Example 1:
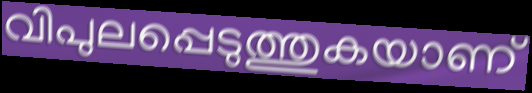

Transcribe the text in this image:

വിപുലപ്പെടുത്തുകയാണ്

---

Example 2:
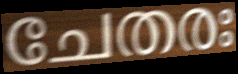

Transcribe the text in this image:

ചേതരഃ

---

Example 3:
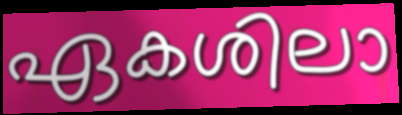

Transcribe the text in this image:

ഏകശിലാ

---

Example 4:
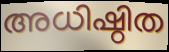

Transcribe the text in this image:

അധിഷ്ഠിത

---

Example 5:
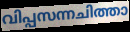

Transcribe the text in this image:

വിപ്പസന്നചിത്താ